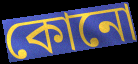
কোনো